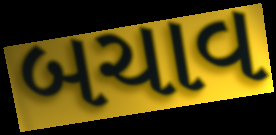
બચાવ